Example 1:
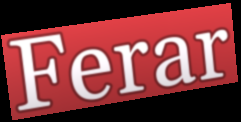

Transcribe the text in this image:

Ferar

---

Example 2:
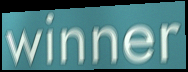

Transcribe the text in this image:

winner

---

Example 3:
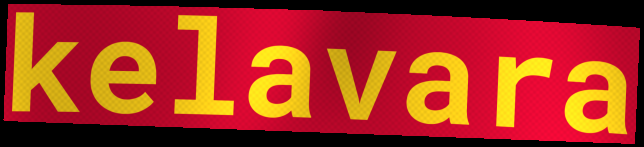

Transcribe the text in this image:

kelavara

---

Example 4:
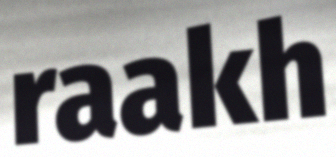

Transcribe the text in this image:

raakh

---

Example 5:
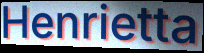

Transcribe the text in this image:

Henrietta